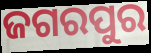
ଜଗରପୁର